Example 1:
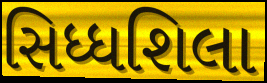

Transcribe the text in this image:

સિધ્ધશિલા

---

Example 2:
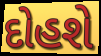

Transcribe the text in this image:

દોહશે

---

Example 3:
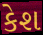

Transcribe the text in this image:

કેશ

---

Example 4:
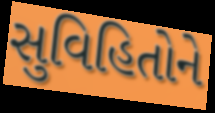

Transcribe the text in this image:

સુવિહિતોને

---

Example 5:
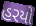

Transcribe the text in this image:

હરયો